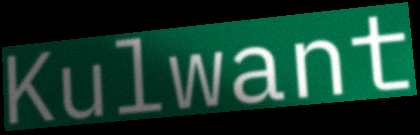
Kulwant